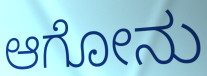
ಆಗೋನು